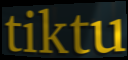
tiktu